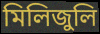
মিলিজুলি